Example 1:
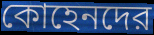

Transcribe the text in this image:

কোহেনদের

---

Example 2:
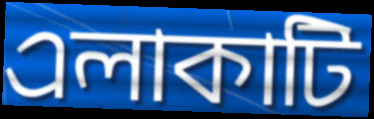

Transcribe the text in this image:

এলাকাটি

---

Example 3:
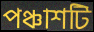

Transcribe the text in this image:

পঞ্চাশটি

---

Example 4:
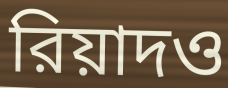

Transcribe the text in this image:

রিয়াদও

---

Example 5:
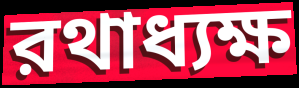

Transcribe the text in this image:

রথাধ্যক্ষ